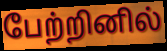
பேற்றினில்